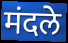
मंदले